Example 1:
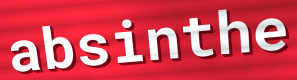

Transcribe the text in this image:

absinthe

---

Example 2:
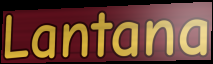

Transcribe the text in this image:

Lantana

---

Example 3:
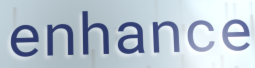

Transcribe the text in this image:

enhance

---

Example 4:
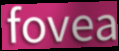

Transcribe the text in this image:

fovea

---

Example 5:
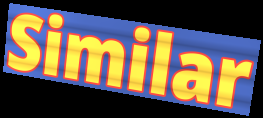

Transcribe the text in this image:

Similar